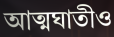
আত্মঘাতীও